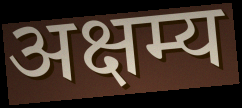
अक्षम्य